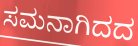
ಸಮನಾಗಿದದ